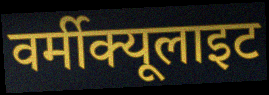
वर्मीक्यूलाइट